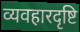
व्यवहारदृष्टि